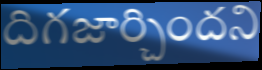
దిగజార్చిందని